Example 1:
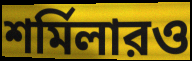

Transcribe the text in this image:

শর্মিলারও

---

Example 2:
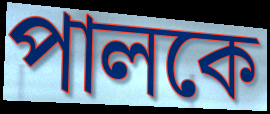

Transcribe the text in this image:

পালকে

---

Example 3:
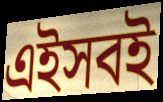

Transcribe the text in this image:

এইসবই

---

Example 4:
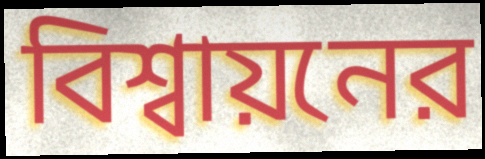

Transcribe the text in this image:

বিশ্বায়নের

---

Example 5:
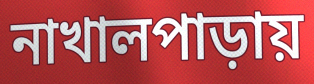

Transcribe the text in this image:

নাখালপাড়ায়